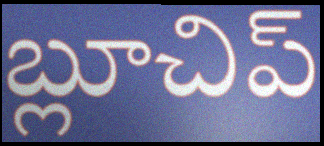
బ్లూచిప్